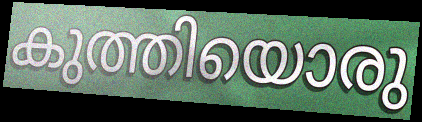
കുത്തിയൊരു